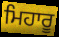
ਮਿਹਾਰੂ